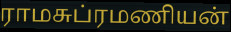
ராமசுப்ரமணியன்